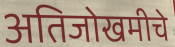
अतिजोखमीचे